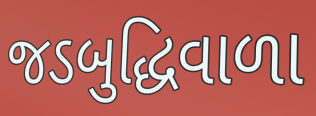
જડબુદ્ધિવાળા